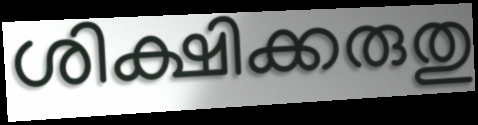
ശിക്ഷിക്കരുതു